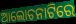
ଆଲୋଚନାଟିରେ